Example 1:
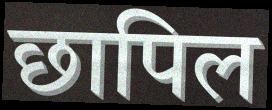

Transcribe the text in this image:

छापिल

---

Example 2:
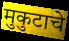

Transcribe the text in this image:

मुकुटाचे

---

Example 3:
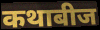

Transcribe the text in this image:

कथाबीज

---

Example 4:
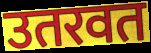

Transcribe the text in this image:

उतरवत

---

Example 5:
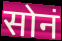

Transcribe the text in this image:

सोनं